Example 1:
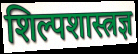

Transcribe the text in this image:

शिल्पशास्त्रज्ञ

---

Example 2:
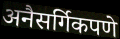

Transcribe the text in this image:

अनैसर्गिकपणे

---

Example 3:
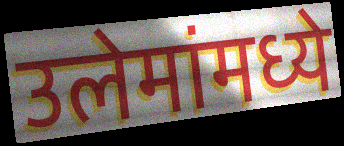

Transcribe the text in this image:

उलेमांमध्ये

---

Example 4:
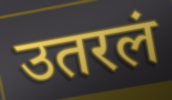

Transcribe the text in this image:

उतरलं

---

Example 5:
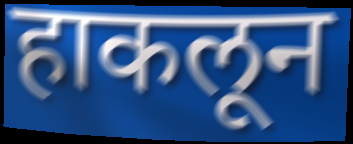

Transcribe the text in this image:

हाकलून